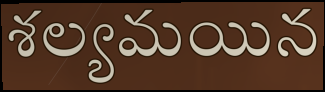
శల్యమయిన